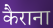
कैराना